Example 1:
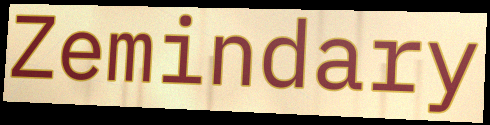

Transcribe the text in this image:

Zemindary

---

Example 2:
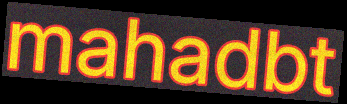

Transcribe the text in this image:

mahadbt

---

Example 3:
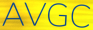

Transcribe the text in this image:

AVGC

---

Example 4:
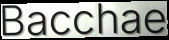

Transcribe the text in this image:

Bacchae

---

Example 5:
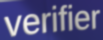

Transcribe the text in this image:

verifier